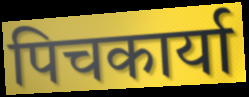
पिचकार्या